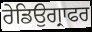
ਰੇਡਿਉਗ੍ਰਾਫਰ